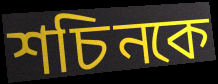
শচিনকে